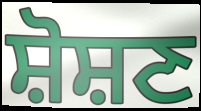
ਸ਼ੋਸ਼ਣ